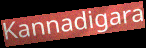
Kannadigara